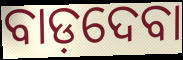
ବାଡ଼ଦେବା